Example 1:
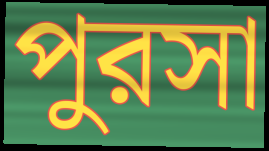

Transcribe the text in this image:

পুরসা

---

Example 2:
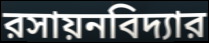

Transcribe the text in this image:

রসায়নবিদ্যার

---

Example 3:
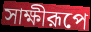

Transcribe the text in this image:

সাক্ষীরূপে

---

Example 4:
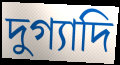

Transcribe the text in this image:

দুগ্যাদি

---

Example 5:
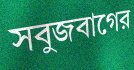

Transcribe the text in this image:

সবুজবাগের